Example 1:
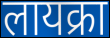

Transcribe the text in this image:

लायक्रा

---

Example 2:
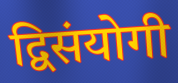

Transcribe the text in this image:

द्विसंयोगी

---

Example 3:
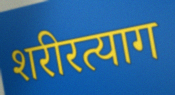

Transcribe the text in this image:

शरीरत्याग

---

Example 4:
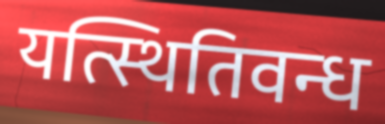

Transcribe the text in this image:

यत्स्थितिवन्ध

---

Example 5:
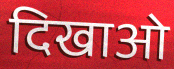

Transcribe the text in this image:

दिखाओ